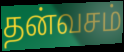
தன்வசம்